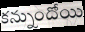
కన్నుందోయి